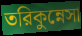
তরিকুন্নেসা